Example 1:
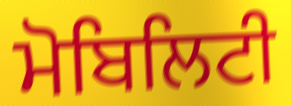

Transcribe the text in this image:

ਮੋਬਿਲਿਟੀ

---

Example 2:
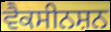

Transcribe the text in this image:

ਵੈਕਸੀਨਸ਼ਨ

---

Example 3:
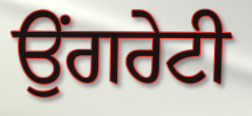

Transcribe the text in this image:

ਉਂਗਰੇਟੀ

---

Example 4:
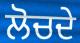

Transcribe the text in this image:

ਲੋਚਦੇ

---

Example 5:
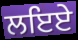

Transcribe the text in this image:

ਲਇਏ